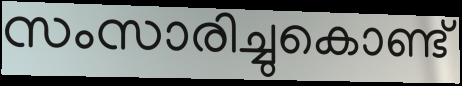
സംസാരിച്ചുകൊണ്ട്